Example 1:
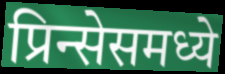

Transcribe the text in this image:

प्रिन्सेसमध्ये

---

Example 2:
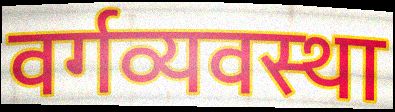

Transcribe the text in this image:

वर्गव्यवस्था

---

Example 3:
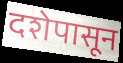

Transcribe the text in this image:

दशेपासून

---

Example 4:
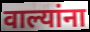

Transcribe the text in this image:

वाल्यांना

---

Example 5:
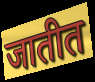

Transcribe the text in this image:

जातीत